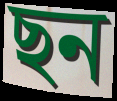
ছন